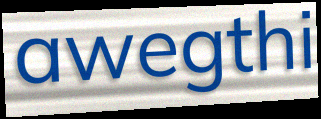
awegthi